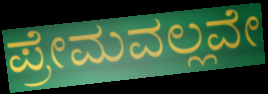
ಪ್ರೇಮವಲ್ಲವೇ